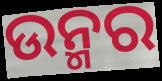
ଉନ୍ମର